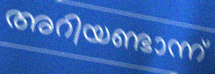
അറിയണ്ടാന്ന്